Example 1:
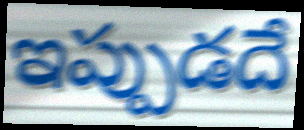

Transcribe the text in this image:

ఇప్పుడదే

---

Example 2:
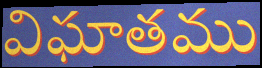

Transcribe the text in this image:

విఘాతము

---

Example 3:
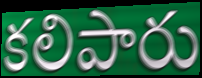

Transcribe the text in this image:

కలిపారు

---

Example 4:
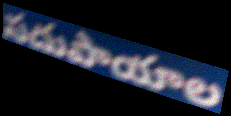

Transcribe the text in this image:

సదుపాయాల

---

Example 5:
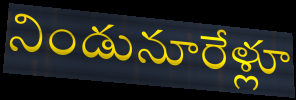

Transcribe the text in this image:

నిండునూరేళ్లూ